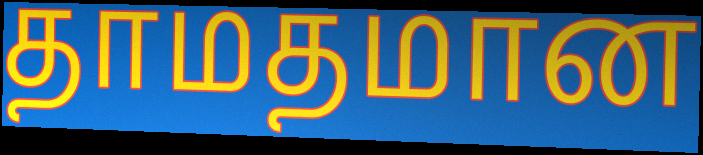
தாமதமான